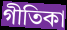
গীতিকা